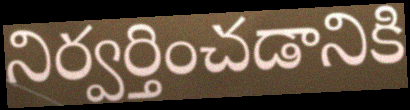
నిర్వర్తించడానికి